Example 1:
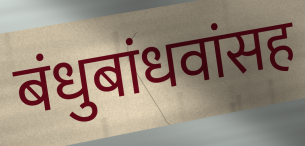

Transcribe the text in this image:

बंधुबांधवांसह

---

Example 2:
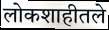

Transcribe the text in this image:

लोकशाहीतले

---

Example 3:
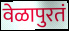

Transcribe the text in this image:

वेळापुरतं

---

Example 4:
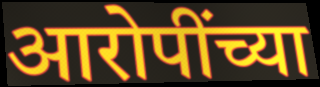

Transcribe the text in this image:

आरोपींच्या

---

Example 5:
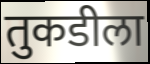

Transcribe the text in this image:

तुकडीला